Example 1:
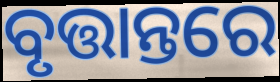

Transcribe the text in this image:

ବୃତ୍ତାନ୍ତରେ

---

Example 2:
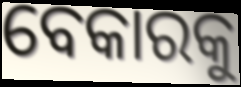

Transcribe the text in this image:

ବେକାରକୁ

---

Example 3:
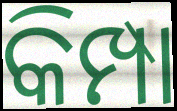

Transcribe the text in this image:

କିମ୍ପା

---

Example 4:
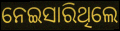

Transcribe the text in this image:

ନେଇସାରିଥିଲେ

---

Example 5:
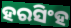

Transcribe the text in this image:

ହରସିଂହ